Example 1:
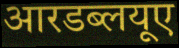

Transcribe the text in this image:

आरडब्लयूए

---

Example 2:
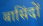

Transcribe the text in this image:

बासिंदों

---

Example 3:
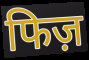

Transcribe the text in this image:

फिज़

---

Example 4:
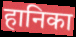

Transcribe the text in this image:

हानिका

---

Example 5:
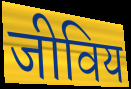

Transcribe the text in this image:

जीविय